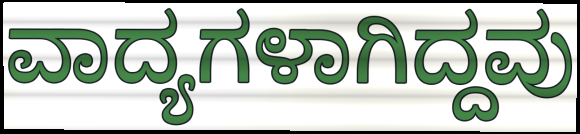
ವಾದ್ಯಗಳಾಗಿದ್ದವು